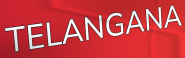
TELANGANA